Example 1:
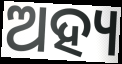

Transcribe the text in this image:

ଅହ୍ୟ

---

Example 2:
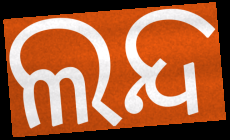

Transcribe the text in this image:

ଲନ୍ଦ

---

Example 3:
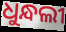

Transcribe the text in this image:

ଧୁନ୍ଧଲୀ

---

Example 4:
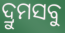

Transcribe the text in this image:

ଦ୍ରୁମସବୁ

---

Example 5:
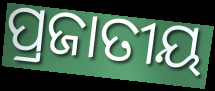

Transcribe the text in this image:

ପ୍ରଜାତୀୟ